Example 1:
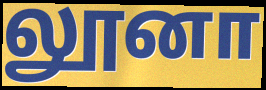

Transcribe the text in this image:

லூனா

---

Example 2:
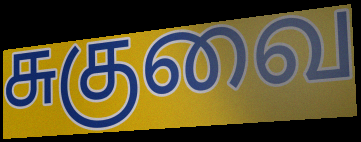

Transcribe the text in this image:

சுகுவை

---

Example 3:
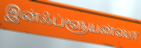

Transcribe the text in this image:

இன்ஃப்ளூயன்ஸா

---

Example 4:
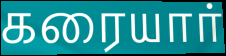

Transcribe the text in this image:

கரையார்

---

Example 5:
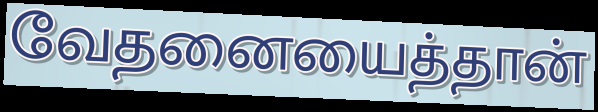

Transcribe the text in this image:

வேதனையைத்தான்